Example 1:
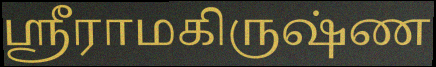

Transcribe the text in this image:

ஸ்ரீராமகிருஷ்ண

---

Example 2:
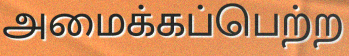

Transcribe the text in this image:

அமைக்கப்பெற்ற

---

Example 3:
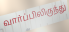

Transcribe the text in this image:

வார்ப்பிலிருந்து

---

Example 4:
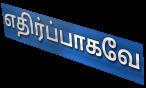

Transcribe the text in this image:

எதிர்ப்பாகவே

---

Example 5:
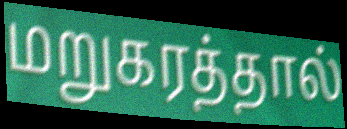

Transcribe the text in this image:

மறுகரத்தால்